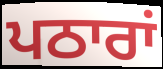
ਪਠਾਰਾਂ